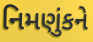
નિમણુંકને